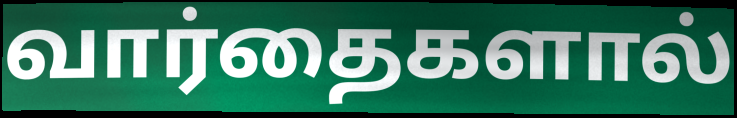
வார்தைகளால்